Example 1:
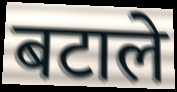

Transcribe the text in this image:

बटाले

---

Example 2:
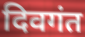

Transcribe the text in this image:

दिवगंत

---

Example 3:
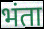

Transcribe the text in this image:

भंता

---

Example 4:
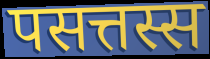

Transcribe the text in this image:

पसत्तस्स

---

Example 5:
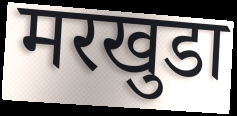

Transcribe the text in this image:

मरखुडा